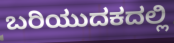
ಬರಿಯುದಕದಲ್ಲಿ